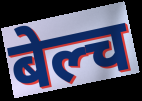
बेल्च